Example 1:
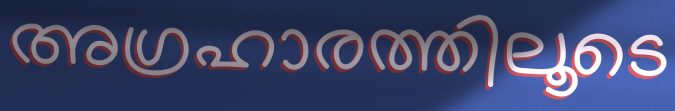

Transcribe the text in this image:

അഗ്രഹാരത്തിലൂടെ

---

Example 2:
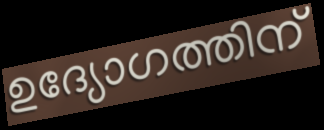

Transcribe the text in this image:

ഉദ്യോഗത്തിന്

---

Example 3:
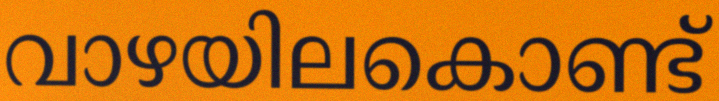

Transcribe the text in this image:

വാഴയിലകൊണ്ട്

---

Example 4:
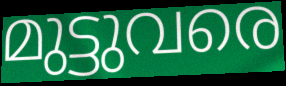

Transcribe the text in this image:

മുട്ടുവരെ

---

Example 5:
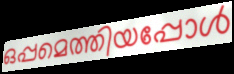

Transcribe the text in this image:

ഒപ്പമെത്തിയപ്പോൾ